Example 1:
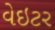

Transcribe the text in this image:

વેઇટર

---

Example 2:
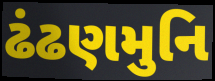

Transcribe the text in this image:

ઢંઢણમુનિ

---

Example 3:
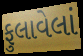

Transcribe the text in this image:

ફુલાવેલાં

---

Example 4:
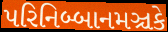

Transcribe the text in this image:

પરિનિબ્બાનમઞ્ચકે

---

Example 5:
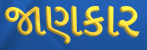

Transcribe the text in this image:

જાણકાર